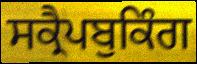
ਸਕ੍ਰੈਪਬੁਕਿੰਗ